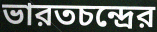
ভারতচন্দ্রের